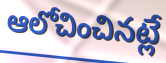
ఆలోచించినట్లే